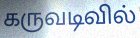
கருவடிவில்